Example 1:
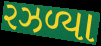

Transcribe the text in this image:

રઝળ્યા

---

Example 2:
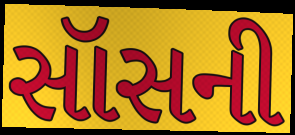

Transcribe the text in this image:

સૉસની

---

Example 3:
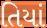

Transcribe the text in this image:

તિયાં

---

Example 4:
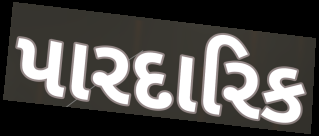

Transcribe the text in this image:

પારદારિક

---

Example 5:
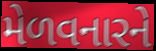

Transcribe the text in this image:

મેળવનારને